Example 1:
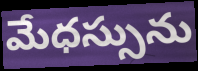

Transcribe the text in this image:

మేధస్సును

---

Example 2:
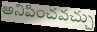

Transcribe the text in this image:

అనిపించవచ్చు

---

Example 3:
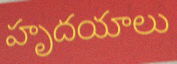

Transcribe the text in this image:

హృదయాలు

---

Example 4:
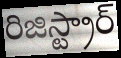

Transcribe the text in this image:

రిజిస్ట్రార్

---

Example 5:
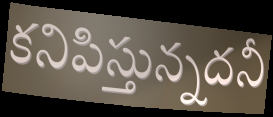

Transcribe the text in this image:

కనిపిస్తున్నదనీ